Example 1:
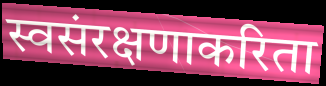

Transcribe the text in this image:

स्वसंरक्षणाकरिता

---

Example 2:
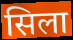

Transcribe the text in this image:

सिला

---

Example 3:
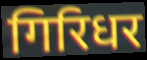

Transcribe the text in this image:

गिरिधर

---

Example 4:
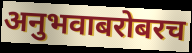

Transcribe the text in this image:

अनुभवाबरोबरच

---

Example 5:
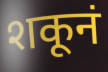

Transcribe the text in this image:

शकूनं